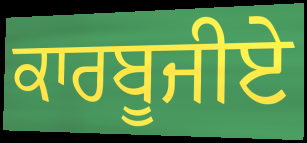
ਕਾਰਬੂਜੀਏ